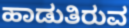
ಹಾಡುತಿರುವ